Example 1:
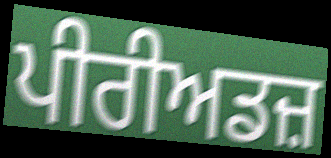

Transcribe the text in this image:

ਪੀਰੀਅਡਜ਼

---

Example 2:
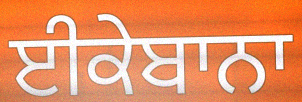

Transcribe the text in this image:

ਈਕੇਬਾਨਾ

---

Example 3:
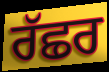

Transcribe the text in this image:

ਰੱਛਰ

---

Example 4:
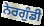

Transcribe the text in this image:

ਨੇਰਗੁੰਡੀ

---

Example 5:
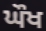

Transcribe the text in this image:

ਘੌਖ